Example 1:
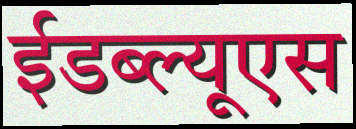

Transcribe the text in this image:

ईडब्ल्यूएस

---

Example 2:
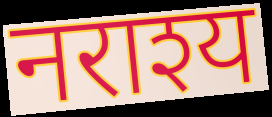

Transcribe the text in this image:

नराश्य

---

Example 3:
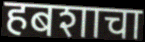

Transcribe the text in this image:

हबशाचा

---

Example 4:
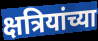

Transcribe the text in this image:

क्षत्रियांच्या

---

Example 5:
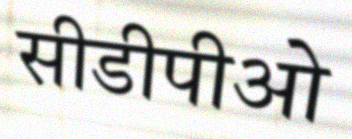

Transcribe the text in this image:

सीडीपीओ